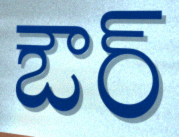
ఔర్